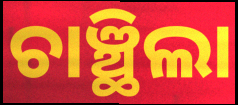
ଚାଞ୍ଛିଲା